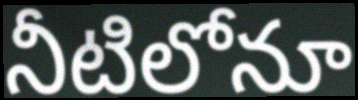
నీటిలోనూ